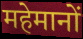
महेमानों